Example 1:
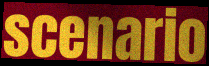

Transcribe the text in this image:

scenario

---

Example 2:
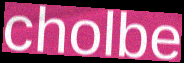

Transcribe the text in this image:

cholbe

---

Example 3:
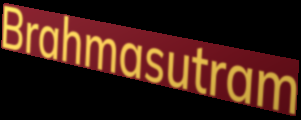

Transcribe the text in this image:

Brahmasutram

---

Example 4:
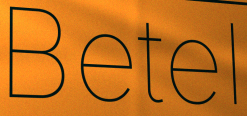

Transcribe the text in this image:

Betel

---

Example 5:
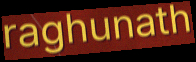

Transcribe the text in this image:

raghunath